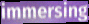
immersing